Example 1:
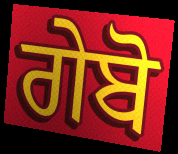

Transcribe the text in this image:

ਗੇਬੋ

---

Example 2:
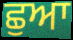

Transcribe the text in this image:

ਛੁਆ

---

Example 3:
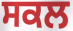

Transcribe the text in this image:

ਸਕਲ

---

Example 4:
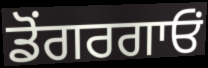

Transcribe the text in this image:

ਡੋਂਗਰਗਾਓਂ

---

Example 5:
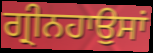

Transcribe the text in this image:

ਗ੍ਰੀਨਹਾਉਸਾਂ